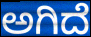
ಅಗಿದೆ